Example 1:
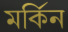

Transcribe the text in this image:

মর্কিন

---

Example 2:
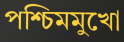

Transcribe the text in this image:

পশ্চিমমুখো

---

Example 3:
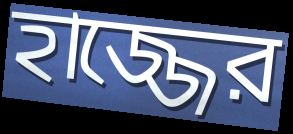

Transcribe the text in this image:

হাজ্জের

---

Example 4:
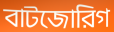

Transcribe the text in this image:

বাটজোরিগ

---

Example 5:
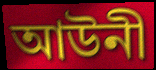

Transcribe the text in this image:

আউনী